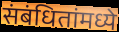
संबंधितांमध्ये